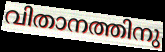
വിതാനത്തിനു